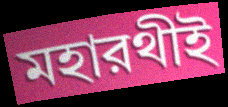
মহারথীই